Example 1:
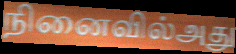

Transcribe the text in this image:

நினைவில்அது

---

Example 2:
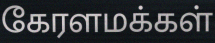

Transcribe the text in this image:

கேரளமக்கள்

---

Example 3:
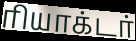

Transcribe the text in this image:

ரியாக்டர்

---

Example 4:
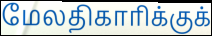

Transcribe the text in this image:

மேலதிகாரிக்குக்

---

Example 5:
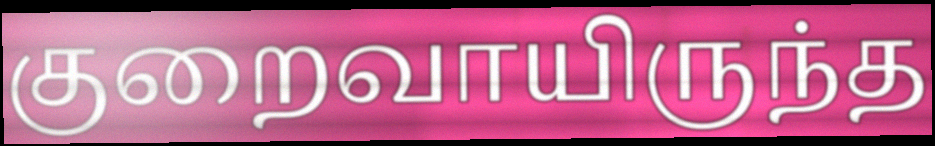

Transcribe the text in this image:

குறைவாயிருந்த